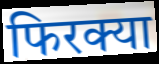
फिरक्या